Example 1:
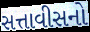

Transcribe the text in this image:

સત્તાવીસનો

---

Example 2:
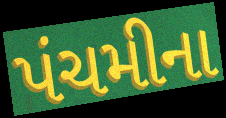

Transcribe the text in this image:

પંચમીના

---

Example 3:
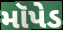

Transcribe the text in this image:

મૉપેડ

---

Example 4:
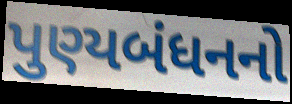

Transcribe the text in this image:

પુણ્યબંધનનો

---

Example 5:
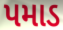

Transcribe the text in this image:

પમાડ